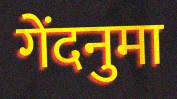
गेंदनुमा